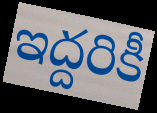
ఇద్దరికీ